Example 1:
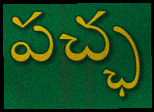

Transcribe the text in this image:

పచ్ఛ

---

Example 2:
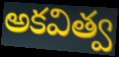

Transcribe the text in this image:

అకవిత్వ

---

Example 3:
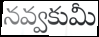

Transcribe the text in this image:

నవ్వకుమీ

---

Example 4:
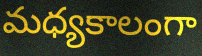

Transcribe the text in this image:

మధ్యకాలంగా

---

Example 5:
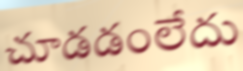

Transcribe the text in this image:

చూడడంలేదు